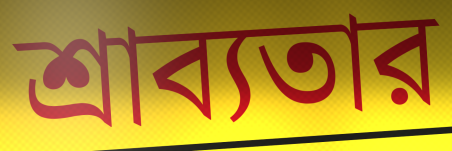
শ্রাব্যতার